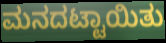
ಮನದಟ್ಟಾಯಿತು